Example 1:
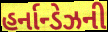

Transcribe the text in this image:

હર્નાન્ડેઝની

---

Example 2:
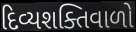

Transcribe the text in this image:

દિવ્યશક્તિવાળો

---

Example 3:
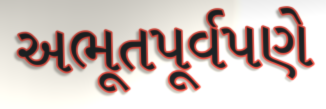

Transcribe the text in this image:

અભૂતપૂર્વપણે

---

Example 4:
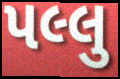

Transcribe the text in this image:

પલ્લુ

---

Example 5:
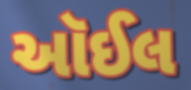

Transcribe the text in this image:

ઑઈલ